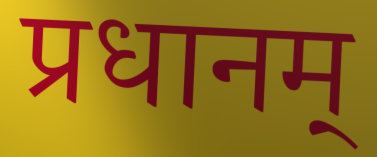
प्रधानम्